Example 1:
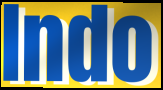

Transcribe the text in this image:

Indo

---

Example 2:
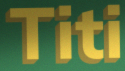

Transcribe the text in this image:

Titi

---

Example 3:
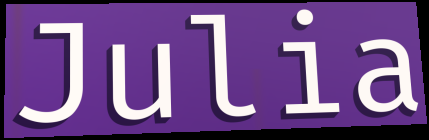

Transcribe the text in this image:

Julia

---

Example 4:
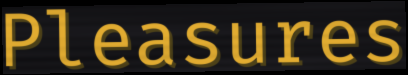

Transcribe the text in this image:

Pleasures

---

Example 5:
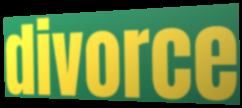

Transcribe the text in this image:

divorce